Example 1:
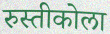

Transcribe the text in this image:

रुस्तीकोला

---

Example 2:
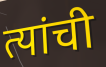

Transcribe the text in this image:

त्‍यांची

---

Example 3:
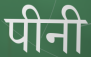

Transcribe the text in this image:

पीनी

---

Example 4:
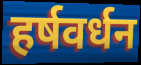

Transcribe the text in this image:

हर्षवर्धन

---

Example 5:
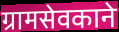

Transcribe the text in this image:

ग्रामसेवकाने